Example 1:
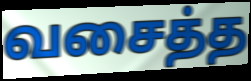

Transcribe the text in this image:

வசைத்த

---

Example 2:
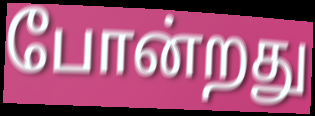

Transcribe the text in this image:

போன்றது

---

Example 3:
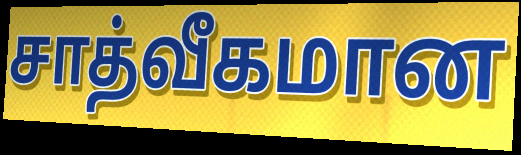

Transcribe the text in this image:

சாத்வீகமான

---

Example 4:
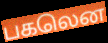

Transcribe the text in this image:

பகலென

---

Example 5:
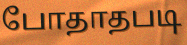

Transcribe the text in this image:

போதாதபடி